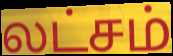
லட்சம்